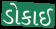
ડોકાઈ